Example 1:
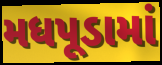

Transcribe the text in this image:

મધપૂડામાં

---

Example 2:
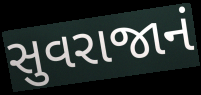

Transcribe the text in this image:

સુવરાજાનં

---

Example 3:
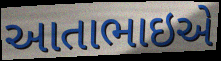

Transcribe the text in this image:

આતાભાઇએ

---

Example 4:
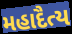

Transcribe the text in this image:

મહાદૈત્ય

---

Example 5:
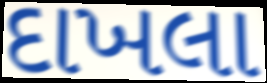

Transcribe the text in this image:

દાખલા